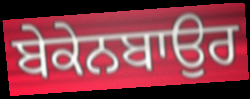
ਬੇਕੇਨਬਾਉਰ